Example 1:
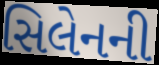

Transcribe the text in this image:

સિલેનની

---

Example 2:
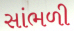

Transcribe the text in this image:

સાંભળી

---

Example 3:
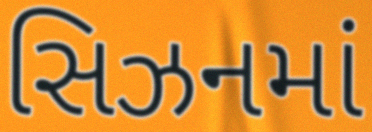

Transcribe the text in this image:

સિઝનમાં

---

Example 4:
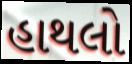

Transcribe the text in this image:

હાથલો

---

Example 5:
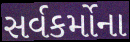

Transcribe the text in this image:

સર્વકર્મોના